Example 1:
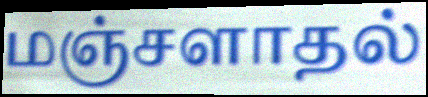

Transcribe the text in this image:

மஞ்சளாதல்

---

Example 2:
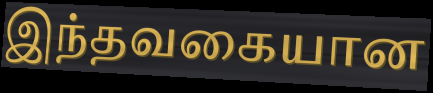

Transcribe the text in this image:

இந்தவகையான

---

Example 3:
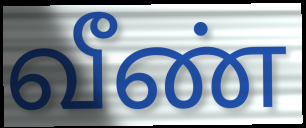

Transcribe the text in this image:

வீண்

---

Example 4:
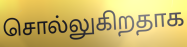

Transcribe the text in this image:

சொல்லுகிறதாக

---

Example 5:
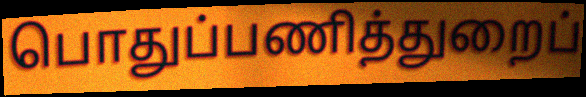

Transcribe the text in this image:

பொதுப்பணித்துறைப்